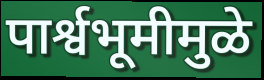
पार्श्वभूमीमुळे